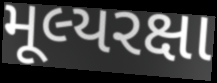
મૂલ્યરક્ષા